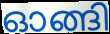
ഓങ്ങി